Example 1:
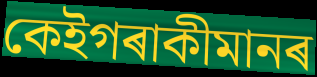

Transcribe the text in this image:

কেইগৰাকীমানৰ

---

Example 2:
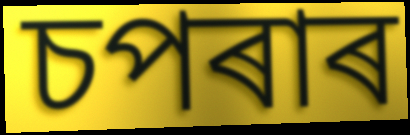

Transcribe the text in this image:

চপৰাৰ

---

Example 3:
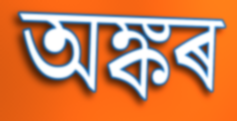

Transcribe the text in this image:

অঙ্কৰ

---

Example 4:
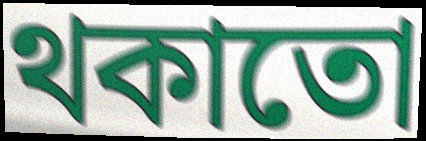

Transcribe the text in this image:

থকাতো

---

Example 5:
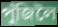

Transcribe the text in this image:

পুঁজিলৈ